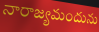
నారాజ్యమందును